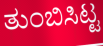
ತುಂಬಿಸಿಟ್ಟ